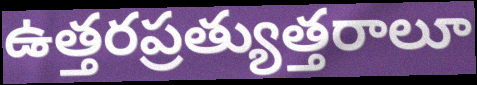
ఉత్తరప్రత్యుత్తరాలూ